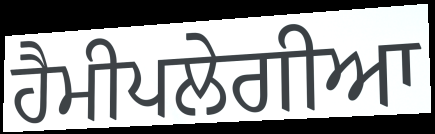
ਹੈਮੀਪਲੇਗੀਆ